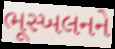
ભૂસ્ખલનને